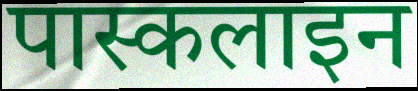
पास्कलाइन